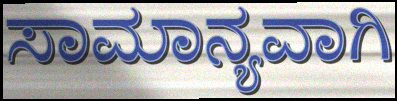
ಸಾಮಾನ್ಯವಾಗಿ